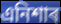
এনিশাৰ